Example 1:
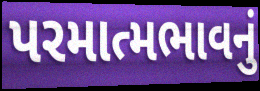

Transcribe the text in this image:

પરમાત્મભાવનું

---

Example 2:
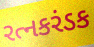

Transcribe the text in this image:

રત્નકરંડક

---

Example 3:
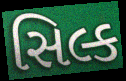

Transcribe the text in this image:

સિલ્ક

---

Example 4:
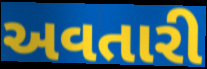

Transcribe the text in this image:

અવતારી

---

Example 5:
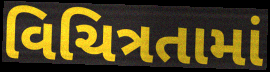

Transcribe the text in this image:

વિચિત્રતામાં